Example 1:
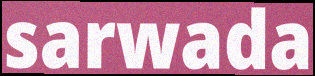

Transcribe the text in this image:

sarwada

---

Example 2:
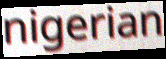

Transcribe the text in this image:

nigerian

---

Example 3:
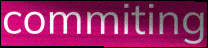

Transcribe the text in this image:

commiting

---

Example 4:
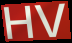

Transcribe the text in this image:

HV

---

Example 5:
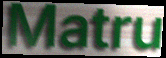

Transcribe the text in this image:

Matru